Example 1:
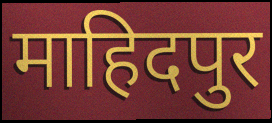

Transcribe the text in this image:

माहिदपुर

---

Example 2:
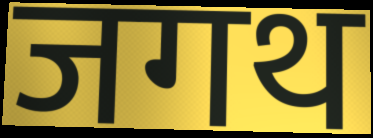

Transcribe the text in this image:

जगथ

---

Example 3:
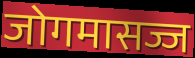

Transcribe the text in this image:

जोगमासज्ज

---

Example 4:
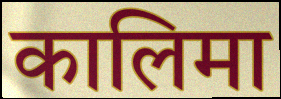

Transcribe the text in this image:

कालिमा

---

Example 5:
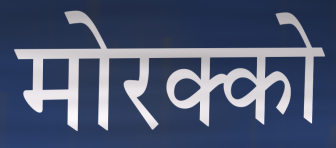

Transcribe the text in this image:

मोरक्को